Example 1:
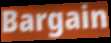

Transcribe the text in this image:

Bargain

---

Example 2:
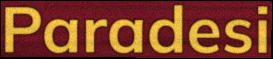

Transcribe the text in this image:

Paradesi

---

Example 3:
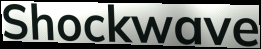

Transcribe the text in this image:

Shockwave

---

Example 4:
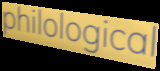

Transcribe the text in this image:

philological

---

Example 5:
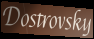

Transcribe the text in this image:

Dostrovsky